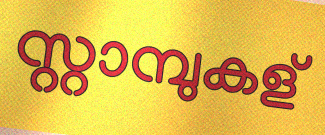
സ്റ്റാമ്പുകള്